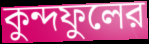
কুন্দফুলের